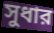
সুধার